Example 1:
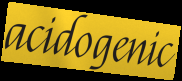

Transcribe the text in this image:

acidogenic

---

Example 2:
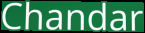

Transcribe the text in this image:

Chandar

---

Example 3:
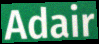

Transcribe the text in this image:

Adair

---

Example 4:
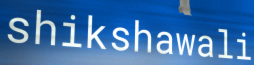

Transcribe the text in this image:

shikshawali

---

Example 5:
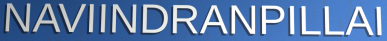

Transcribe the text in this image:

NAVIINDRANPILLAI